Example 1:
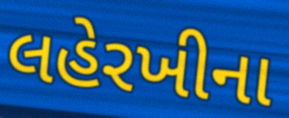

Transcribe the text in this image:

લહેરખીના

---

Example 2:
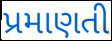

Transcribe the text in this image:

પ્રમાણતી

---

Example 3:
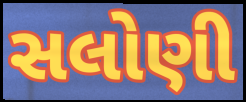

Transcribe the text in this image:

સલોણી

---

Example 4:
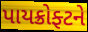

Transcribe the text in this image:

પાયક્રોફ્ટને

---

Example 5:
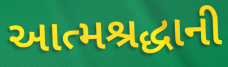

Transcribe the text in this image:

આત્મશ્રદ્ધાની